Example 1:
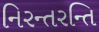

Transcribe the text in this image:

નિરન્તરન્તિ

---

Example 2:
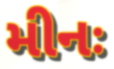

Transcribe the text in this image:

મીનઃ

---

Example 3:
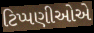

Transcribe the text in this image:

ટિપ્પણીઓએ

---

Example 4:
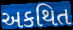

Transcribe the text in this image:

અકથિત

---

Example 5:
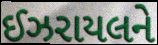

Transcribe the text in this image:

ઈઝરાયલને